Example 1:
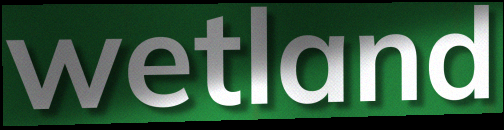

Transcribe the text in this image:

wetland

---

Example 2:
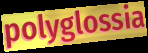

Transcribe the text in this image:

polyglossia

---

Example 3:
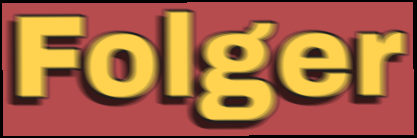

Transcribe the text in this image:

Folger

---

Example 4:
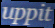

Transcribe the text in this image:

uppit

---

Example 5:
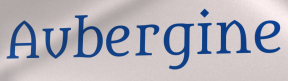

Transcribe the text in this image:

Aubergine